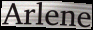
Arlene